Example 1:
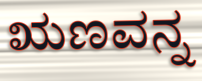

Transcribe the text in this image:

ಋಣವನ್ನ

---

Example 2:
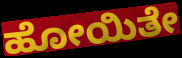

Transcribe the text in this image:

ಹೋಯಿತೇ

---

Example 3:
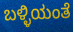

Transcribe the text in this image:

ಬಳ್ಳಿಯಂತೆ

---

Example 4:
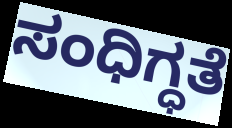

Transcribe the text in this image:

ಸಂಧಿಗ್ಧತೆ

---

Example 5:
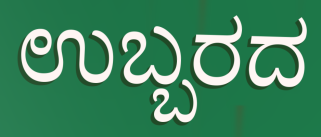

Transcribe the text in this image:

ಉಬ್ಬರದ